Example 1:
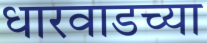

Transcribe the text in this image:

धारवाडच्या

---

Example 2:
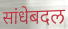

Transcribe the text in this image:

सांधेबदल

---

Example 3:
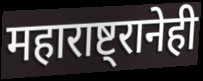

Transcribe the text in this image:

महाराष्ट्रानेही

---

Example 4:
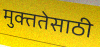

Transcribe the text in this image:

मुक्ततेसाठी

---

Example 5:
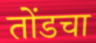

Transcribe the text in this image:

तोंडचा